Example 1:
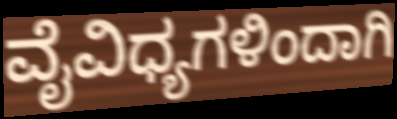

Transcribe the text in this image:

ವೈವಿಧ್ಯಗಳಿಂದಾಗಿ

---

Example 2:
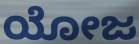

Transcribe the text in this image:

ಯೋಜ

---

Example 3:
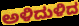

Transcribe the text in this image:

ಅಳಿದುಳಿದ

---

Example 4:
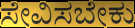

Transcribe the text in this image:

ಸೇವಿಸಬೇಕು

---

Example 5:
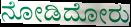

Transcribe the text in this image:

ನೋಡಿದೋರು